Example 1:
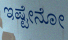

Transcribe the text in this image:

ಇಷ್ಟೇನೋ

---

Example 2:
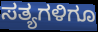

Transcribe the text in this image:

ಸತ್ಯಗಳಿಗೂ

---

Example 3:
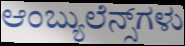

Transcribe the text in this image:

ಆಂಬ್ಯುಲೆನ್ಸ್‌ಗಳು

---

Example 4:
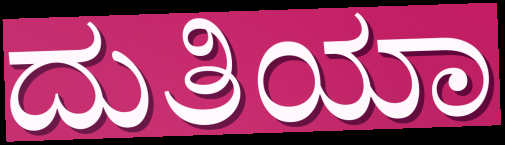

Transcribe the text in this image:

ದುತಿಯಾ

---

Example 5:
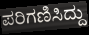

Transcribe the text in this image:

ಪರಿಗಣಿಸಿದ್ದು